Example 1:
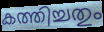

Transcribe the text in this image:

കത്തിച്ചതും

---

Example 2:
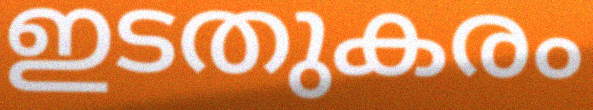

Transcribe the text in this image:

ഇടതുകരം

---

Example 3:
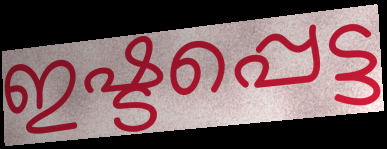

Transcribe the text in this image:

ഇഷ്ടപ്പെട്ട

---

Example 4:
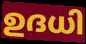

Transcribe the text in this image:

ഉദധി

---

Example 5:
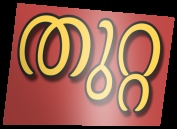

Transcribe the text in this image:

തുറ്റ